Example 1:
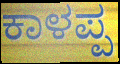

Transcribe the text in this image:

ಕಾಳಪ್ಪ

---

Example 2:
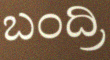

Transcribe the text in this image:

ಬಂದ್ರಿ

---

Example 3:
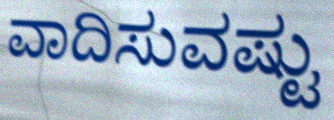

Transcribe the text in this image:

ವಾದಿಸುವಷ್ಟು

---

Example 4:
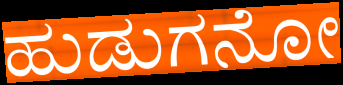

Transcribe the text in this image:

ಹುಡುಗನೋ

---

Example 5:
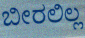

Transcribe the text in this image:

ಬೀರಲಿಲ್ಲ